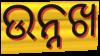
ଉନ୍ନଖ